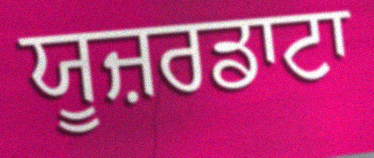
ਯੂਜ਼ਰਡਾਟਾ